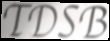
TDSB